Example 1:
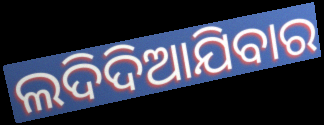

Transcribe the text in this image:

ଲଦିଦିଆଯିବାର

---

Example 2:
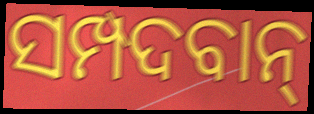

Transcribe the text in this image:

ସମ୍ପଦବାନ୍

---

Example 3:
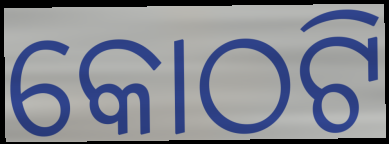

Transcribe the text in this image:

କୋଠଟି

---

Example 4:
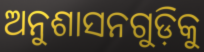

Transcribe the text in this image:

ଅନୁଶାସନଗୁଡ଼ିକୁ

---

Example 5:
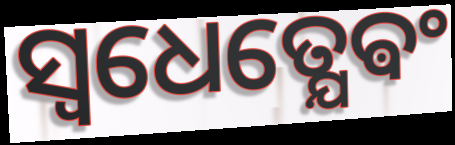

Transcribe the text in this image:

ସ୍ଵଧେତ୍ଯେଵଂ